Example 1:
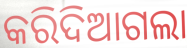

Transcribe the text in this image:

କରିଦିଆଗଲା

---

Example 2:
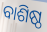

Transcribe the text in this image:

ବାଶିଷ୍ଠ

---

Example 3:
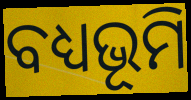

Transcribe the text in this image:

ବଧ୍ୟଭୂମି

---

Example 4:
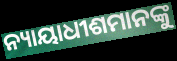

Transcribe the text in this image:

ନ୍ୟାୟାଧୀଶମାନଙ୍କୁ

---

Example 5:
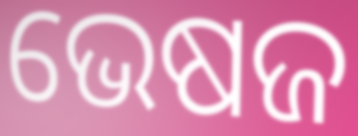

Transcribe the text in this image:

ଭେଷଜ